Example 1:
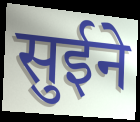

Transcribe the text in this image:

सुईने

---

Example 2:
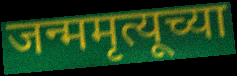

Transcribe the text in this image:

जन्ममृत्यूच्या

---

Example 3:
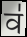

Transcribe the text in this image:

व॑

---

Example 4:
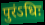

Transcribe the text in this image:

पुरंऽधिः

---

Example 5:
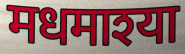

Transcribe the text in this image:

मधमाश्‍या